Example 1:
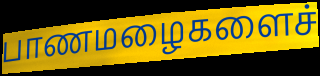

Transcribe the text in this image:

பாணமழைகளைச்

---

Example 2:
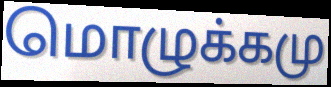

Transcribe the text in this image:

மொழுக்கமு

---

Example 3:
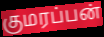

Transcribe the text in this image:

குமரப்பன்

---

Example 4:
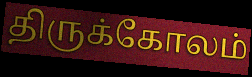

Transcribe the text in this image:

திருக்கோலம்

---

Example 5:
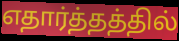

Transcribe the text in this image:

எதார்த்தத்தில்